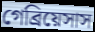
গেব্রিয়েসাস